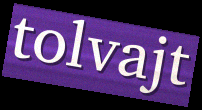
tolvajt